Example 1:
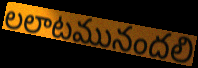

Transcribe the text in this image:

లలాటమునందలి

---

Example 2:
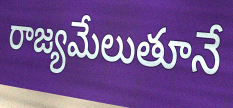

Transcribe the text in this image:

రాజ్యమేలుతూనే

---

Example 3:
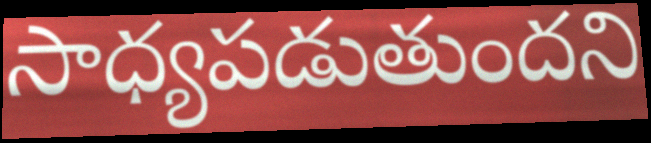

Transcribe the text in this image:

సాధ్యపడుతుందని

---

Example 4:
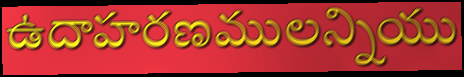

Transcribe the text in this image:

ఉదాహరణములన్నియు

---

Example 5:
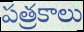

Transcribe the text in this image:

పత్రకాలు